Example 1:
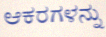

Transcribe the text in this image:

ಆಕರಗಳನ್ನು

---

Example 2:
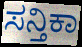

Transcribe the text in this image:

ಸನ್ತಿಕಾ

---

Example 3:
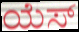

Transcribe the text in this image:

ಯೆಸ್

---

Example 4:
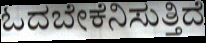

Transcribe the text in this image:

ಓದಬೇಕೆನಿಸುತ್ತಿದೆ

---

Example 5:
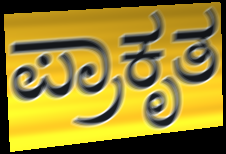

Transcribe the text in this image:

ಪ್ರಾಕೃತ